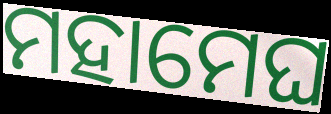
ମହାମେଘ